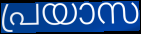
പ്രയാസ